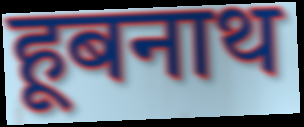
हूबनाथ